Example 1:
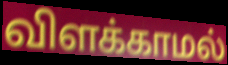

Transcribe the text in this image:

விளக்காமல்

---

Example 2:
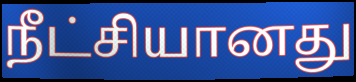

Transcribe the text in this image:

நீட்சியானது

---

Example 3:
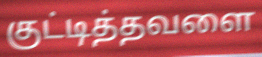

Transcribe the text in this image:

குட்டித்தவளை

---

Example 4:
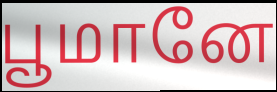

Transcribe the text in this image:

பூமானே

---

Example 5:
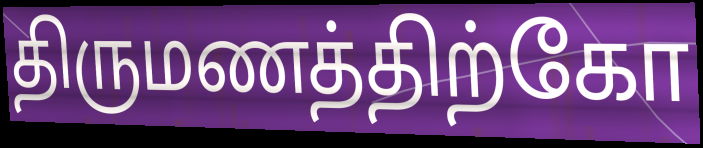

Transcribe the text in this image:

திருமணத்திற்கோ